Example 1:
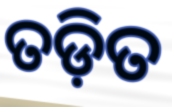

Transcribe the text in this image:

ତଡ଼ିତ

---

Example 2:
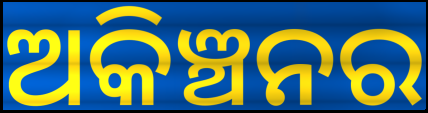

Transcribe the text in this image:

ଅକିଞ୍ଚନର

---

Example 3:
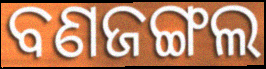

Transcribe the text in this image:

ବଣଜଙ୍ଗଲ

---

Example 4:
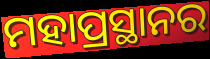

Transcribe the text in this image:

ମହାପ୍ରସ୍ଥାନର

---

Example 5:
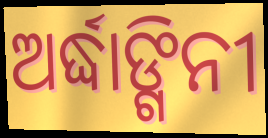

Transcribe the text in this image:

ଅର୍ଦ୍ଧାଙ୍ଗିନୀ